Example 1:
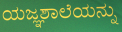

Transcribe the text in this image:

ಯಜ್ಞಶಾಲೆಯನ್ನು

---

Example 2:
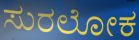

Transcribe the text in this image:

ಸುರಲೋಕ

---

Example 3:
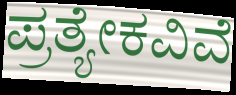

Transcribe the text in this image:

ಪ್ರತ್ಯೇಕವಿವೆ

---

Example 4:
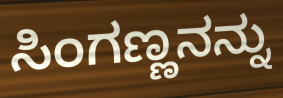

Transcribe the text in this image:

ಸಿಂಗಣ್ಣನನ್ನು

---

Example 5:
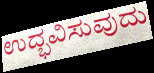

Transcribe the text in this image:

ಉದ್ಭವಿಸುವುದು